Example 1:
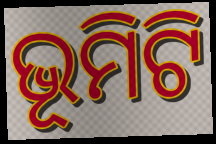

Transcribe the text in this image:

ଭୂମିଟି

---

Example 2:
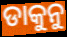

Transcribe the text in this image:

ଡାକୁନୁ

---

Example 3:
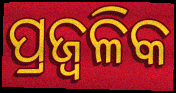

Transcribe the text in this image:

ପ୍ରଜ୍ଵଳିକ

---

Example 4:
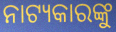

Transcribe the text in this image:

ନାଟ୍ୟକାରଙ୍କୁ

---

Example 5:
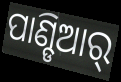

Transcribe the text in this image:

ପାଣ୍ଡିଆର୍